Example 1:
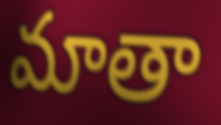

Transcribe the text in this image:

మాతా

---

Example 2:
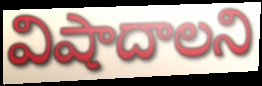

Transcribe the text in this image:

విషాదాలని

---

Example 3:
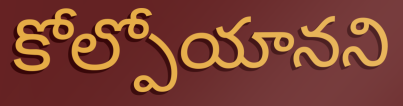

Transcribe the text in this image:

కోల్పోయానని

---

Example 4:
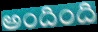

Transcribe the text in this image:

అందింది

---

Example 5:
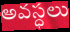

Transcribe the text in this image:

అవస్ధలు